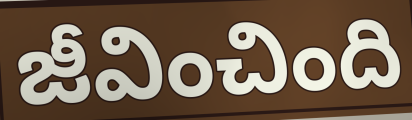
జీవించింది